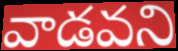
వాడవని